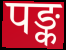
पङ्क